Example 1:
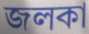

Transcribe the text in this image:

জলকা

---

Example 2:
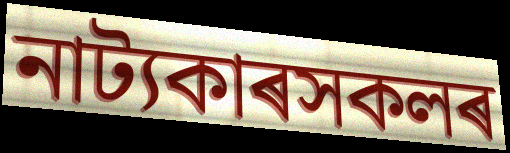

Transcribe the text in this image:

নাট্যকাৰসকলৰ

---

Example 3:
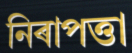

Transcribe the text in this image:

নিৰাপত্তা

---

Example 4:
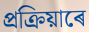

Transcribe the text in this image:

প্ৰক্ৰিয়াৰে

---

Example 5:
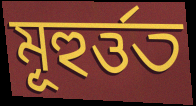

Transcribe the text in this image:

মূহুৰ্ত্তত